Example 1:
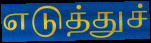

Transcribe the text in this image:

எடுத்துச்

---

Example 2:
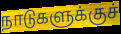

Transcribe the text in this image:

நாடுகளுக்குச்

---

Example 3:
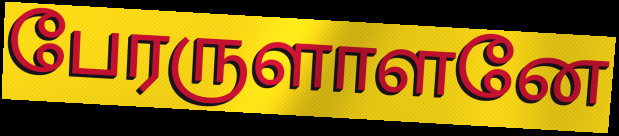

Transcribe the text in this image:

பேரருளாளனே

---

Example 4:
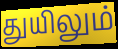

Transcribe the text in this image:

துயிலும்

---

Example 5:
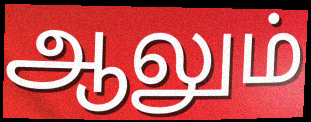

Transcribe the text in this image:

ஆலும்